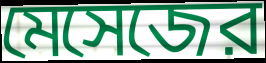
মেসেজের